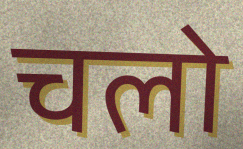
चलो